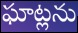
ఘాట్లను